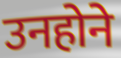
उनहोने